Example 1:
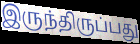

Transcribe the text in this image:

இருந்திருப்பது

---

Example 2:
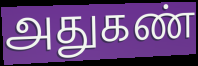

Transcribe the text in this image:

அதுகண்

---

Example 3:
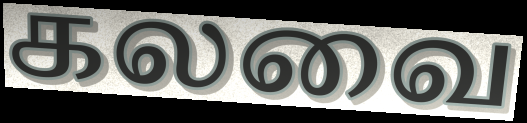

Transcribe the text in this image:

கலவை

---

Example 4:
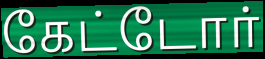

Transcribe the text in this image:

கேட்டோர்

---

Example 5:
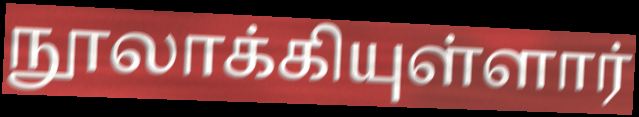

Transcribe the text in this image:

நூலாக்கியுள்ளார்